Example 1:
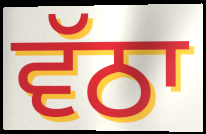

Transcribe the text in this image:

ਵੱਠਾ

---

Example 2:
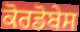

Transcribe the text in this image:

ਕੋਰਡੋਬੇਸ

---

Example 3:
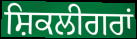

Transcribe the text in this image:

ਸ਼ਿਕਲੀਗਰਾਂ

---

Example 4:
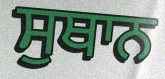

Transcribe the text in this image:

ਸੁਥਾਨ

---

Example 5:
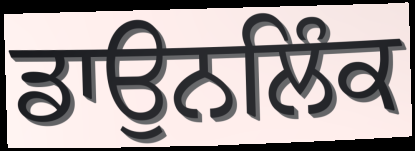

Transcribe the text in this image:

ਡਾਉਨਲਿੰਕ